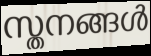
സ്തനങ്ങൾ